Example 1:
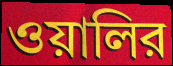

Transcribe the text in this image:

ওয়ালির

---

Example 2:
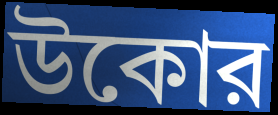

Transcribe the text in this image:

উকোর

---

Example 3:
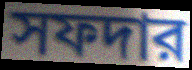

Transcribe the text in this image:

সফদার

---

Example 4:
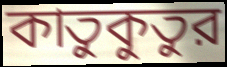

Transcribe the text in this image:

কাতুকুতুর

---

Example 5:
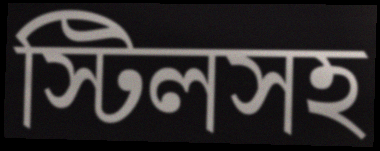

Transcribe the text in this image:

স্টিলসহ